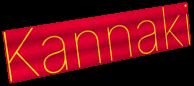
Kannaki